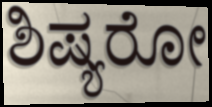
ಶಿಷ್ಯರೋ